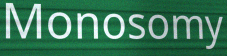
Monosomy